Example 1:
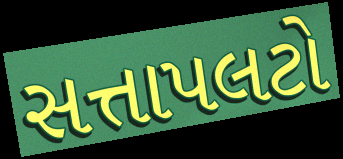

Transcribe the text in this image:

સત્તાપલટો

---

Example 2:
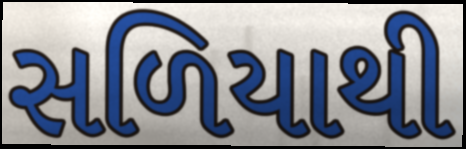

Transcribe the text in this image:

સળિયાથી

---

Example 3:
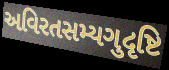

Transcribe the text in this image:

અવિરતસમ્યગુદૃષ્ટિ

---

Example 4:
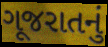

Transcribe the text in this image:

ગૂજરાતનું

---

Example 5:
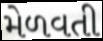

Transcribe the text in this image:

મેળવતી